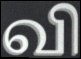
வி